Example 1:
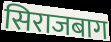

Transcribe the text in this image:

सिराजबाग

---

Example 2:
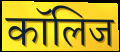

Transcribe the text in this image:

कॉलिज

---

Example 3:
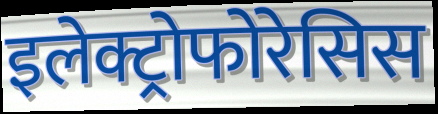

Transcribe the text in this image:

इलेक्ट्रोफोरेसिस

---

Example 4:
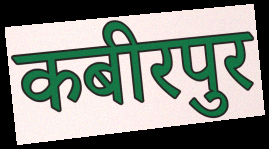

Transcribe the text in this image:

कबीरपुर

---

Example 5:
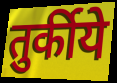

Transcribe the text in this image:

तुर्कीये